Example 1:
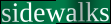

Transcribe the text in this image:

sidewalks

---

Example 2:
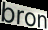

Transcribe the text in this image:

bron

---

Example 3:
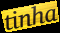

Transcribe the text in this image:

tinha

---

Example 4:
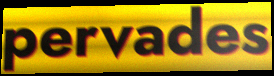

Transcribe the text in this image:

pervades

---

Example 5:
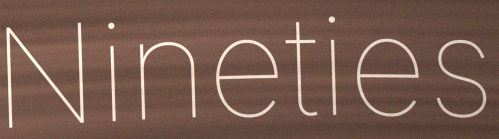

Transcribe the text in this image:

Nineties